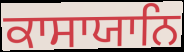
ਕਾਸਾਯਾਨਿ